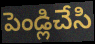
పెండ్లిచేసి